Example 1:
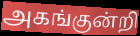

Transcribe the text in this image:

அகங்குன்றி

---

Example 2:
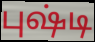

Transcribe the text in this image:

புஷ்டி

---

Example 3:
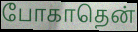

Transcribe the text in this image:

போகாதென்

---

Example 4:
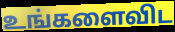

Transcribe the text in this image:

உங்களைவிட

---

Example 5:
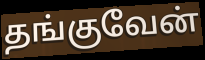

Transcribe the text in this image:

தங்குவேன்